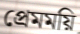
প্রেমময়ি